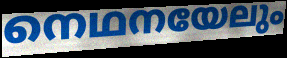
നെഥനയേലും